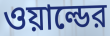
ওয়াল্ডের